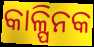
କାଳ୍ପିନକ